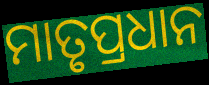
ମାତୃପ୍ରଧାନ